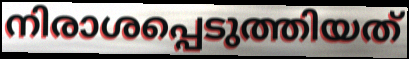
നിരാശപ്പെടുത്തിയത്